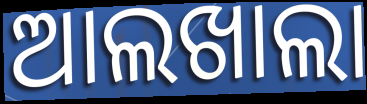
ଆଲଖାଲା